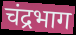
चंद्रभाग